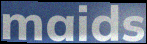
maids